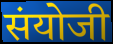
संयोजी